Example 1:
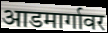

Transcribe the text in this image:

आडमार्गावर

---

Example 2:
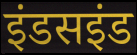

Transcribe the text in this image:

इंडसइंड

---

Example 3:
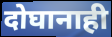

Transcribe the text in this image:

दोघानाही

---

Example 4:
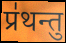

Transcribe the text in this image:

प्र॑थन्तु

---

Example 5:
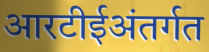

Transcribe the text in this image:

आरटीईअंतर्गत